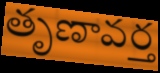
తృణావర్త